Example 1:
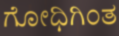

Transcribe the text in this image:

ಗೋಧಿಗಿಂತ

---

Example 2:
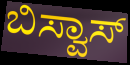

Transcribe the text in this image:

ಬಿಸ್ವಾಸ್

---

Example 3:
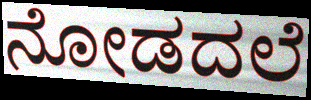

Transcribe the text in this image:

ನೋಡದಲೆ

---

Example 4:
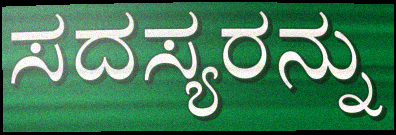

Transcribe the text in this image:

ಸದಸ್ಯರನ್ನು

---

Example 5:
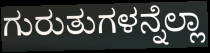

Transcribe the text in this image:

ಗುರುತುಗಳನ್ನೆಲ್ಲಾ